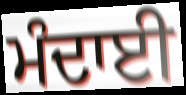
ਮੰਦਾਈ